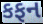
કફન